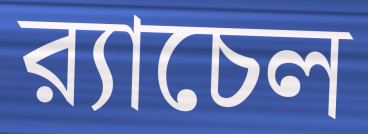
র‍্যাচেল